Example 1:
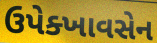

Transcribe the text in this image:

ઉપેક્ખાવસેન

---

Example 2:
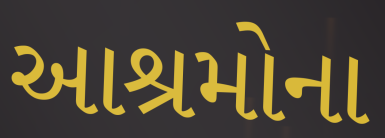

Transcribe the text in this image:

આશ્રમોના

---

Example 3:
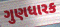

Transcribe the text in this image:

ગુણધારક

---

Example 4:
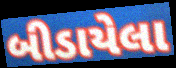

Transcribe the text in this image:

બીડાયેલા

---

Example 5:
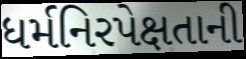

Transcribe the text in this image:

ધર્મનિરપેક્ષતાની